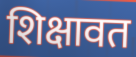
शिक्षावत